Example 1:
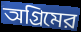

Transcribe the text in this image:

অগ্রিমের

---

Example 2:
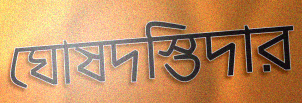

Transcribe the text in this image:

ঘোষদস্তিদার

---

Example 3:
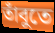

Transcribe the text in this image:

তাঁবুতে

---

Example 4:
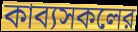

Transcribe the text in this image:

কাব্যসকলের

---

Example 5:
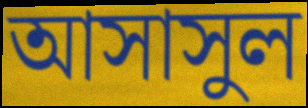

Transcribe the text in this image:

আসাসুল